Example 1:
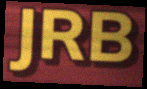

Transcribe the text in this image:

JRB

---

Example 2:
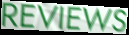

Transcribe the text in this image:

REVIEWS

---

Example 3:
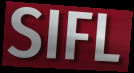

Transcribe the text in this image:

SIFL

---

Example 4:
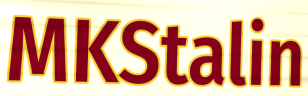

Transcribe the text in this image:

MKStalin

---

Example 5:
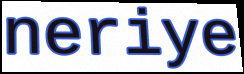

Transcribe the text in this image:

neriye